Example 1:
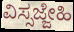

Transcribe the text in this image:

ವಿಸ್ಸಜ್ಜೇಹಿ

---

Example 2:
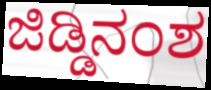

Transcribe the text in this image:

ಜಿಡ್ಡಿನಂಶ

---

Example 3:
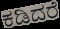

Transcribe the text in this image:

ಕಡಿದರೆ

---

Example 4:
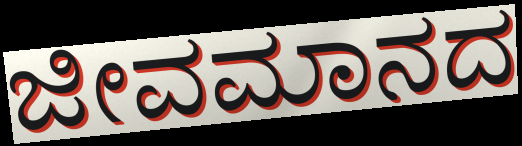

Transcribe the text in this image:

ಜೀವಮಾನದ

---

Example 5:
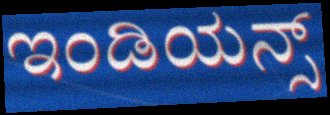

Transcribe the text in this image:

ಇಂಡಿಯನ್ಸ್